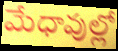
మేధావుల్లో